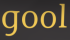
gool